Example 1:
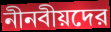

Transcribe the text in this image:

নীনবীয়দের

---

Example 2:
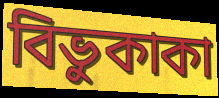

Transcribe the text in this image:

বিভুকাকা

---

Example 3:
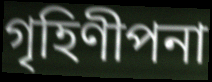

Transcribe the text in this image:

গৃহিণীপনা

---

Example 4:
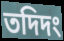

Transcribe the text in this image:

তদিদং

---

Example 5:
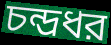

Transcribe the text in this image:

চন্দ্রধর